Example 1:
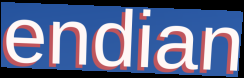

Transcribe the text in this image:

endian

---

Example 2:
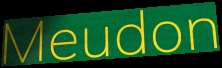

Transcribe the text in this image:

Meudon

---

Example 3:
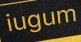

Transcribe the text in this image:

iugum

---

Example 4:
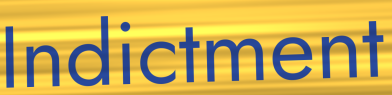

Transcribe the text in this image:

Indictment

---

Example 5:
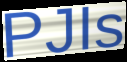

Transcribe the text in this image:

PJIs